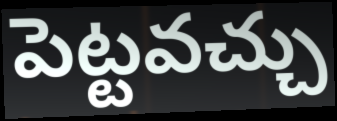
పెట్టవచ్చు